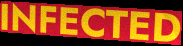
INFECTED